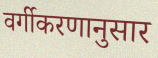
वर्गीकरणानुसार